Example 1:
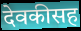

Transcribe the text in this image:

देवकीसह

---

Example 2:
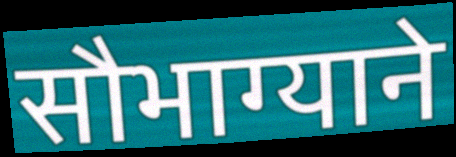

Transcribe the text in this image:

सौभाग्याने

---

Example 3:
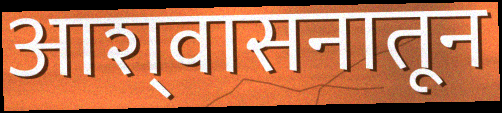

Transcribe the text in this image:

आश्वासनातून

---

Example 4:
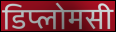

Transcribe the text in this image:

डिप्लोमसी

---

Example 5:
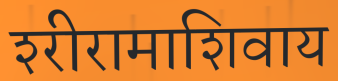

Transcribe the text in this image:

श्रीरामाशिवाय